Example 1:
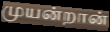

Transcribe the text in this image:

முயன்றான்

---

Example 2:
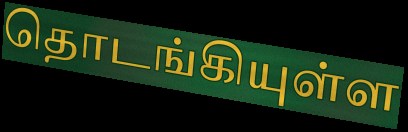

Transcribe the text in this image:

தொடங்கியுள்ள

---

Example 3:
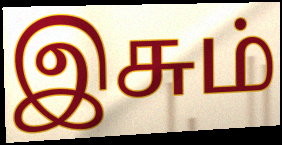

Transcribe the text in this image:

இசும்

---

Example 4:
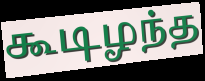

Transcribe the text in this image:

கூடிழந்த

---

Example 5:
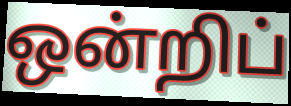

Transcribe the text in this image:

ஒன்றிப்